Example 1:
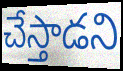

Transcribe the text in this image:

చేస్తాడని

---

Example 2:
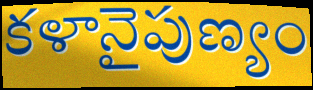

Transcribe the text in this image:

కళానైపుణ్యం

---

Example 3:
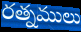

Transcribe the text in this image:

రత్నములు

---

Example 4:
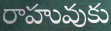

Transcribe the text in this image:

రాహువుకు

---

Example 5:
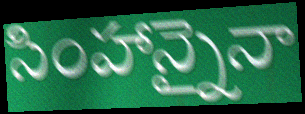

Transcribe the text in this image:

సింహాన్నైనా